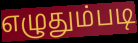
எழுதும்படி